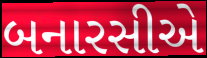
બનારસીએ